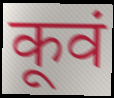
कूवं